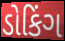
ડોકિંગ